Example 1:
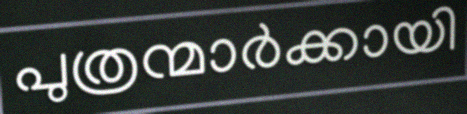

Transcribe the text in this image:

പുത്രന്മാർക്കായി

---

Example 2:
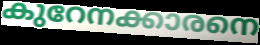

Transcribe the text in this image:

കുറേനക്കാരനെ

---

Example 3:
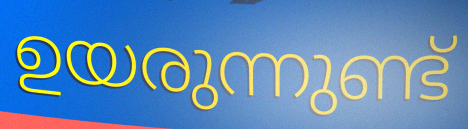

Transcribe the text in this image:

ഉയരുന്നുണ്ട്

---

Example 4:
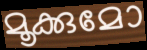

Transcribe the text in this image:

മൂക്കുമോ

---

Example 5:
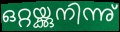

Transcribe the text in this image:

ഒറ്റയ്ക്കുനിന്നു്